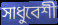
সাধুবেশী